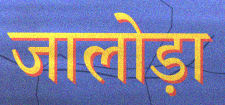
जालोड़ा